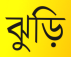
ঝুড়ি